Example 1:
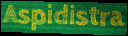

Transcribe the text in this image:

Aspidistra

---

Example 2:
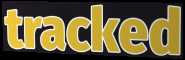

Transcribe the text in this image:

tracked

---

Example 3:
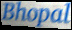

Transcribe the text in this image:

Bhopal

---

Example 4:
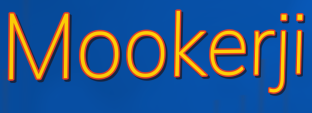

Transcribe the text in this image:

Mookerji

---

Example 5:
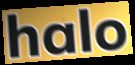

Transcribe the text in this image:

halo